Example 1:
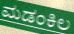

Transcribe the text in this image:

ಮಡಂಕಿಲ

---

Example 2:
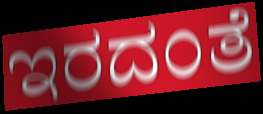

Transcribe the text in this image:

ಇರದಂತೆ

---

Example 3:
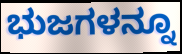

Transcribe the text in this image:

ಭುಜಗಳನ್ನೂ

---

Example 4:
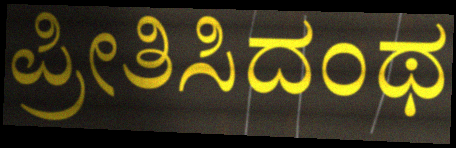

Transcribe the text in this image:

ಪ್ರೀತಿಸಿದಂಥ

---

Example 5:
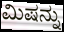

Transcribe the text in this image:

ಮಿಷನ್ನು